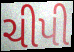
ચીપી